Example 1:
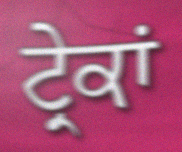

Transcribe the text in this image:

ਟ੍ਰੇਕਾਂ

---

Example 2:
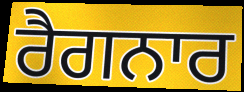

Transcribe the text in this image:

ਰੈਗਨਾਰ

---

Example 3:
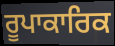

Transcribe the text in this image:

ਰੂਪਾਕਾਰਿਕ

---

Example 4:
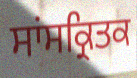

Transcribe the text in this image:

ਸਾਂਸਕ੍ਰਿਤਕ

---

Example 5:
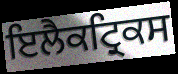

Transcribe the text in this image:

ਇਲੈਕਟ੍ਰਿਕਸ